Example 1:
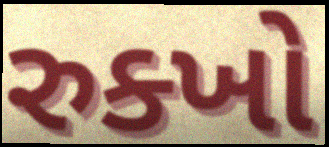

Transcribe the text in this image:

રુક્ખો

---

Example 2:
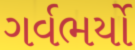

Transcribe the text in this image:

ગર્વભર્યો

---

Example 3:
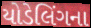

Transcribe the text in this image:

યોડેલિંગના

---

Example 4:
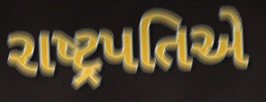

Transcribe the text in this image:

રાષ્ટ્રપતિએ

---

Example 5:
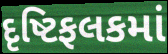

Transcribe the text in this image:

દૃષ્ટિફલકમાં